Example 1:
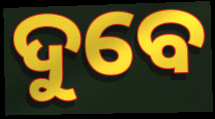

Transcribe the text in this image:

ଦୁବେ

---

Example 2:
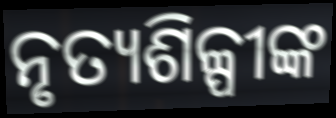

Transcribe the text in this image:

ନୃତ୍ୟଶିଳ୍ପୀଙ୍କ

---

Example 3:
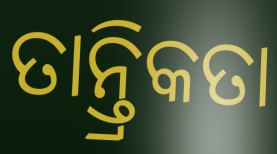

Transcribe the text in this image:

ତାନ୍ତ୍ରିକତା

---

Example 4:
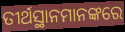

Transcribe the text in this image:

ତୀର୍ଥସ୍ଥାନମାନଙ୍କରେ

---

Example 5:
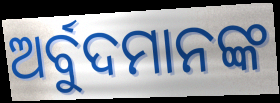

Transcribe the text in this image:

ଅର୍ବୁଦମାନଙ୍କ